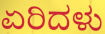
ಏರಿದಳು